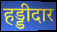
हड्डीदार